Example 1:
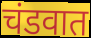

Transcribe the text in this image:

चंडवात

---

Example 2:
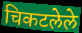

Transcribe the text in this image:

चिकटलेले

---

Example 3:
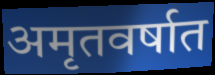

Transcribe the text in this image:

अमृतवर्षात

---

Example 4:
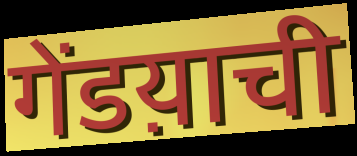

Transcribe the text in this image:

गेंडय़ाची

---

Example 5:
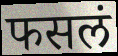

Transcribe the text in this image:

फसलं